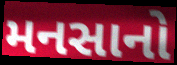
મનસાનો